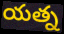
యత్న